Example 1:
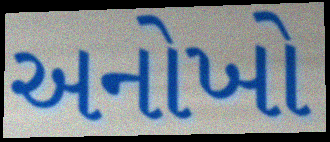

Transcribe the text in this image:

અનોખો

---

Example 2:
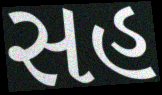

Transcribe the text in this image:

સહ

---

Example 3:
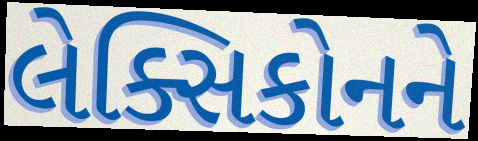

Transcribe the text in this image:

લેક્સિકોનને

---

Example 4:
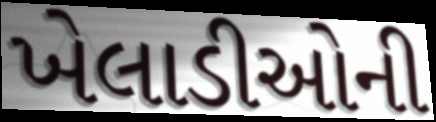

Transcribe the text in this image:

ખેલાડીઓની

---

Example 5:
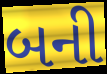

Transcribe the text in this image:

બની